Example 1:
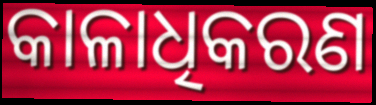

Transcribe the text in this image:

କାଳାଧିକରଣ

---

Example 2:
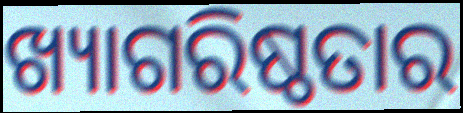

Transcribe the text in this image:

ଖ୍ୟାଗରିଷ୍ଠତାର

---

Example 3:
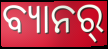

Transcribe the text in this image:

ବ୍ୟାନର୍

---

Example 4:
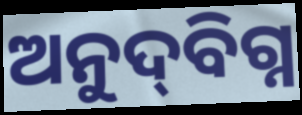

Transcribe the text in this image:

ଅନୁଦ୍‌ବିଗ୍ନ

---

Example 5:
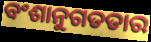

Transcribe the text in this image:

ବଂଶାନୁଗତତାର